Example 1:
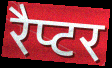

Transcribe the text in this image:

रैप्टर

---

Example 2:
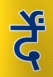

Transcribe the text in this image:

र्दें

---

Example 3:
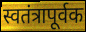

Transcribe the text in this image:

स्वतंत्रापूर्वक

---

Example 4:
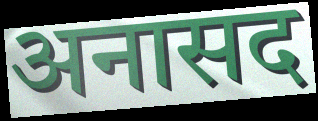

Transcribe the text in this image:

अनासद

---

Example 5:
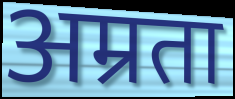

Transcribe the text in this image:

अम्रता